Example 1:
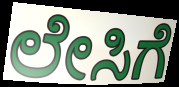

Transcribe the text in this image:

ಲೇಸಿಗೆ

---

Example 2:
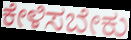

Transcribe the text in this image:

ಕೇಳಿಸಬೇಕು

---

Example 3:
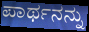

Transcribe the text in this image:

ಪಾರ್ಥನನ್ನು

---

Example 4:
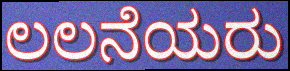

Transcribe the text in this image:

ಲಲನೆಯರು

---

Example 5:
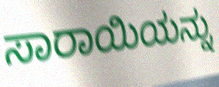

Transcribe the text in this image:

ಸಾರಾಯಿಯನ್ನು